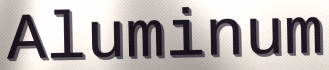
Aluminum